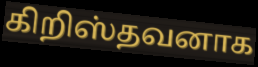
கிறிஸ்தவனாக